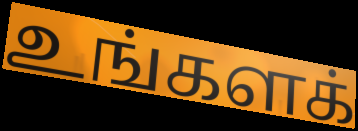
உங்களக்